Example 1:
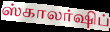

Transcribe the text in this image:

ஸ்காலர்ஷிப்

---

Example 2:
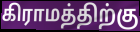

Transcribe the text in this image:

கிராமத்திற்கு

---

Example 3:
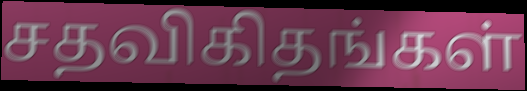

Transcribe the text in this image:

சதவிகிதங்கள்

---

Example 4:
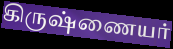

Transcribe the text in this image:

கிருஷ்ணையர்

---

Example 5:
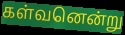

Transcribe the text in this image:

கள்வனென்று